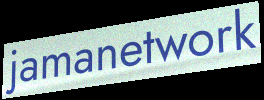
jamanetwork